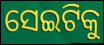
ସେଇଟିକୁ